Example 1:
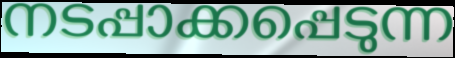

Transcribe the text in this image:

നടപ്പാക്കപ്പെടുന്ന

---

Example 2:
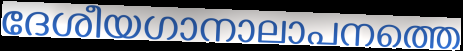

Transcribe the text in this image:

ദേശീയഗാനാലാപനത്തെ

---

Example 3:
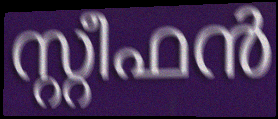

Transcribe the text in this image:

സ്റ്റീഫൻ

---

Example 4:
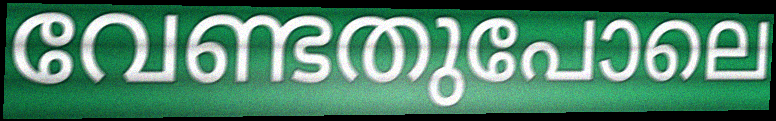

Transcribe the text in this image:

വേണ്ടതുപോലെ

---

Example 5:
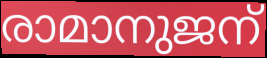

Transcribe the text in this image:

രാമാനുജന്